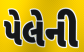
પેલેની